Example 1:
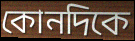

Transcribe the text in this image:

কোনদিকে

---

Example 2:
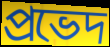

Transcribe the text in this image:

প্রভেদ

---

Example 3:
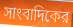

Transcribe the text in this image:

সাংবাদিকের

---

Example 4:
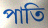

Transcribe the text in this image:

পাতি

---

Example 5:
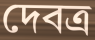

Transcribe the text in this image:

দেবত্র